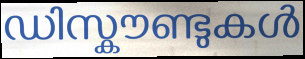
ഡിസ്കൗണ്ടുകൾ